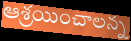
ఆశ్రయించాలన్న